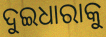
ଦୁଇଧାରାକୁ